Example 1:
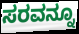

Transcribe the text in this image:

ಸರವನ್ನೂ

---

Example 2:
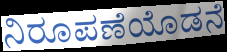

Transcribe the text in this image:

ನಿರೂಪಣೆಯೊಡನೆ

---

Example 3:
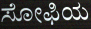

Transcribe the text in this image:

ಸೋಫಿಯ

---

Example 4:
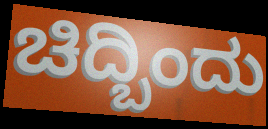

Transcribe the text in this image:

ಚಿದ್ಬಿಂದು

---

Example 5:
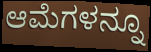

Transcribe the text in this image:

ಆಮೆಗಳನ್ನೂ